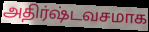
அதிர்ஷ்டவசமாக